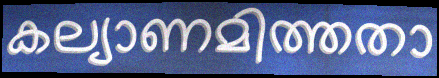
കല്യാണമിത്തതാ